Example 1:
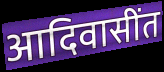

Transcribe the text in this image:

आदिवासींत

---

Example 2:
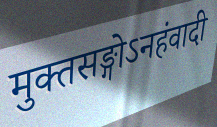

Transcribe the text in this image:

मुक्तसङ्गोऽनहंवादी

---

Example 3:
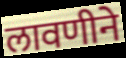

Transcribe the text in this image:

लावणीने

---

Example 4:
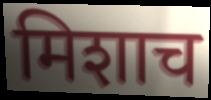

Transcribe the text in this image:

मिशाच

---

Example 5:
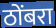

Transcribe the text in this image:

ठोंबरा